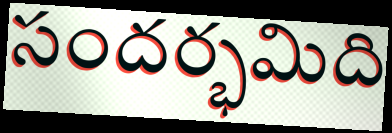
సందర్భమిది